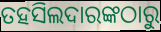
ତହସିଲଦାରଙ୍କଠାରୁ